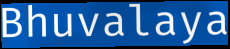
Bhuvalaya